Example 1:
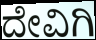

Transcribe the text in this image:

ದೇವಿಗಿ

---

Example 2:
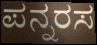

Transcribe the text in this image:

ಪನ್ನರಸ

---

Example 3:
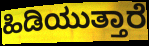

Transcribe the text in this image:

ಹಿಡಿಯುತ್ತಾರೆ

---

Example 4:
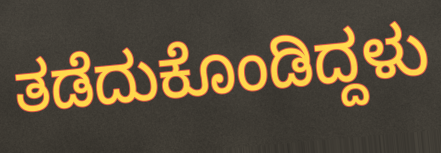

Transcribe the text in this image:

ತಡೆದುಕೊಂಡಿದ್ದಳು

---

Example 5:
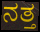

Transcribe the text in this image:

ನತ್ತ